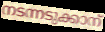
നടന്നടുക്കാന്